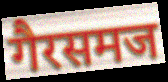
गैरसमज